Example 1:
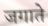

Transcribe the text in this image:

जगाते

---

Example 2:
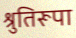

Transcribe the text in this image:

श्रुतिरूपा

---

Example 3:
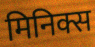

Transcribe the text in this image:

मिनिक्स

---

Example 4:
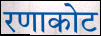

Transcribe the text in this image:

रणाकोट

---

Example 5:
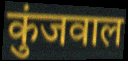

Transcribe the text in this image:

कुंजवाल